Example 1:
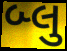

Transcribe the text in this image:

બ્લુ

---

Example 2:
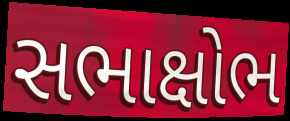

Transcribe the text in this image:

સભાક્ષોભ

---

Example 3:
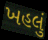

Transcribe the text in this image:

ખહલું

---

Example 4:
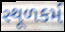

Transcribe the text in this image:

સ્થૂળકર્મ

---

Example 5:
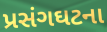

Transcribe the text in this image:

પ્રસંગઘટના